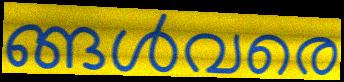
ങ്ങൾവരെ